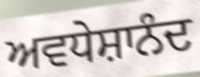
ਅਵਧੇਸ਼ਾਨੰਦ